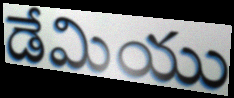
డేమియు